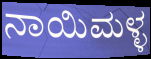
ನಾಯಿಮಳ್ಳ